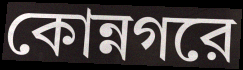
কোন্নগরে